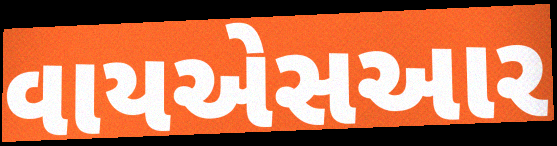
વાયએસઆર